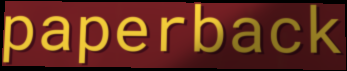
paperback